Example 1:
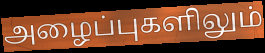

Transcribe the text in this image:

அழைப்புகளிலும்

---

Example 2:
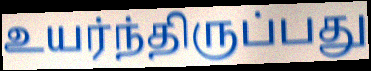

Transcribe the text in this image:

உயர்ந்திருப்பது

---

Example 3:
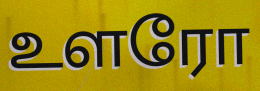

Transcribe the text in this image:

உளரோ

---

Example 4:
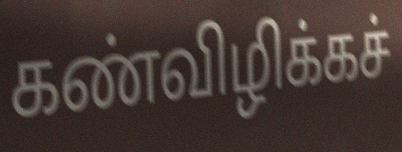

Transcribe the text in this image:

கண்விழிக்கச்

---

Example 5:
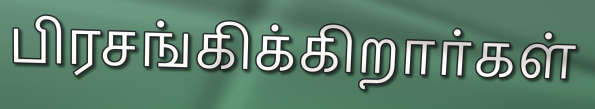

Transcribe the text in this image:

பிரசங்கிக்கிறார்கள்